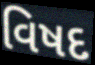
વિષદ